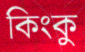
কিংকু